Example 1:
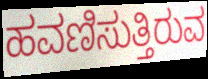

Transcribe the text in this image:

ಹವಣಿಸುತ್ತಿರುವ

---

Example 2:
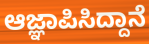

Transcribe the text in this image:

ಆಜ್ಞಾಪಿಸಿದ್ದಾನೆ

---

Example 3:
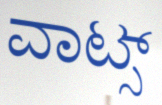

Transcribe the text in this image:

ವಾಟ್ಸ್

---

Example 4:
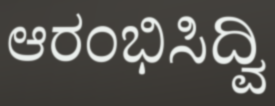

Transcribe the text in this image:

ಆರಂಭಿಸಿದ್ವಿ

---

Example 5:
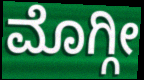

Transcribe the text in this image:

ಮೊಗ್ಗೀ